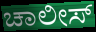
ಚಾಲೀಸ್